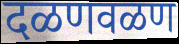
दळणवळण